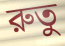
রুতু